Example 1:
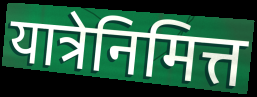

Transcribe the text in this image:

यात्रेनिमित्त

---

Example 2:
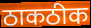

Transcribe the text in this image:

ठाकठीक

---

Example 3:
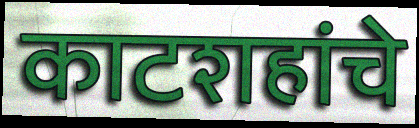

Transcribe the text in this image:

काटशहांचे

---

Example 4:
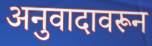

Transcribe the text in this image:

अनुवादावरून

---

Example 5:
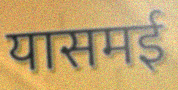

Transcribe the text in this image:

यासमई